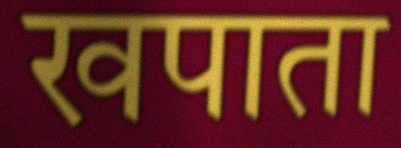
खपाता